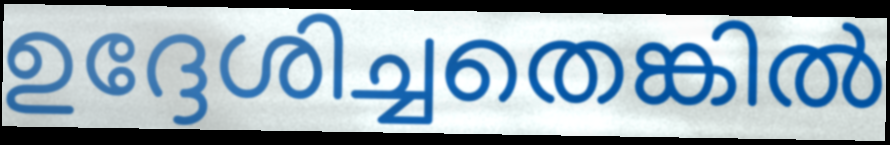
ഉദ്ദേശിച്ചതെങ്കിൽ